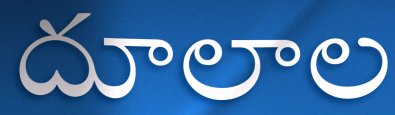
దూలాల